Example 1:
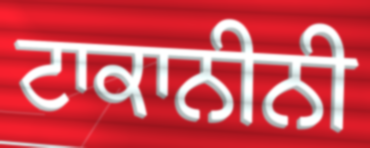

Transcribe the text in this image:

ਟਾਕਾਨੀਨੀ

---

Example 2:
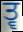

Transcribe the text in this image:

ਤ੍ਵ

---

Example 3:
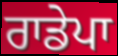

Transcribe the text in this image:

ਰਾਡੇਪਾ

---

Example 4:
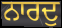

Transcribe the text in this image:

ਨਾਰਦੁ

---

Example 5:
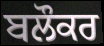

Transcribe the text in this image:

ਬਲੌਕਰ